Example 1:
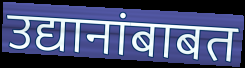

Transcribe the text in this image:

उद्यानांबाबत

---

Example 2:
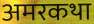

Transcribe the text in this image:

अमरकथा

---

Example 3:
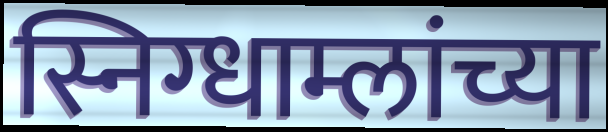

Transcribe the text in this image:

स्निग्धाम्लांच्या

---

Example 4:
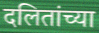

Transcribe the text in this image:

दलितांच्या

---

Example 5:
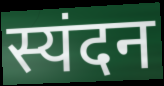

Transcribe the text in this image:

स्यंदन